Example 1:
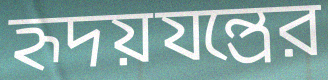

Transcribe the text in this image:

হৃদয়যন্ত্রের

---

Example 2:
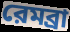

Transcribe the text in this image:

রেমব্রা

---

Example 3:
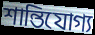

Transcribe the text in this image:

শান্তিযোগ্য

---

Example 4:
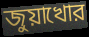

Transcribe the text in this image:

জুয়াখোর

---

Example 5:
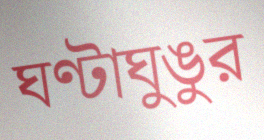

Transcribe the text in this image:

ঘণ্টাঘুঙুর